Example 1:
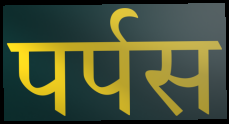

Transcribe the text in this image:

पर्पस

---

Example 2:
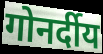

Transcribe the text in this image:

गोनर्दीय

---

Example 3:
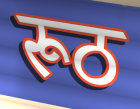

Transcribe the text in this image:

रूठ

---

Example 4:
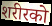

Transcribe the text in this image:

शरीरको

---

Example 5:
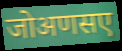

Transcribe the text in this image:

जोअणसए